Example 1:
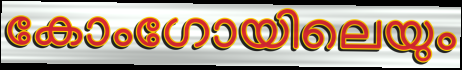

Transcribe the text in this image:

കോംഗോയിലെയും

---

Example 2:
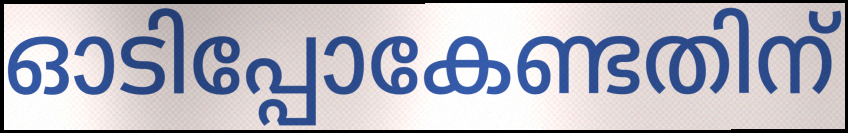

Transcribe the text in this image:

ഓടിപ്പോകേണ്ടതിന്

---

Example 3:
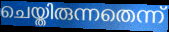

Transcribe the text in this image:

ചെയ്തിരുന്നതെന്ന്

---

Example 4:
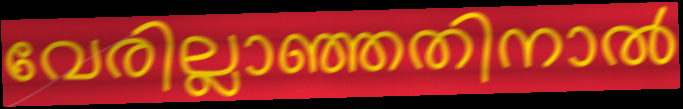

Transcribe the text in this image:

വേരില്ലാഞ്ഞതിനാൽ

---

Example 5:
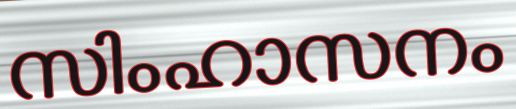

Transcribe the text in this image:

സിംഹാസനം